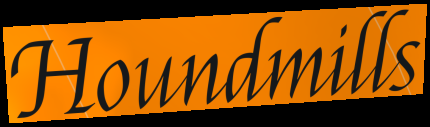
Houndmills